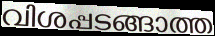
വിശപ്പടങ്ങാത്ത